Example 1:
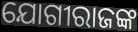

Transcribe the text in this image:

ଯୋଗୀରାଜଙ୍କ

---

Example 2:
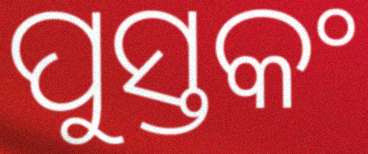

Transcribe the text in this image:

ପୁସ୍ତକଂ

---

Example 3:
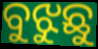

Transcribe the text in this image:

ବୁଝୁଛୁ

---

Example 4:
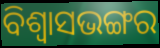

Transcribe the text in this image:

ବିଶ୍ଵାସଭଙ୍ଗର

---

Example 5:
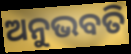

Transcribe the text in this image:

ଅନୁଭବତି